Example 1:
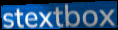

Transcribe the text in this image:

stextbox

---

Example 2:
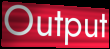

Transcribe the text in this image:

Output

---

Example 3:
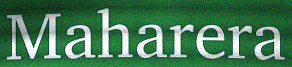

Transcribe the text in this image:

Maharera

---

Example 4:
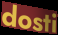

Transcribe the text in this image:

dosti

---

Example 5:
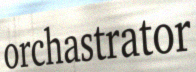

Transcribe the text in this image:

orchastrator